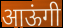
आऊंगी